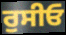
ਰੁਸੀਓ